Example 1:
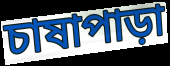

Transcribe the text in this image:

চাষাপাড়া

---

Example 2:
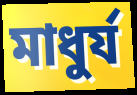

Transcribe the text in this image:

মাধুর্য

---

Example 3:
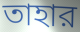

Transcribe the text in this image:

তাহার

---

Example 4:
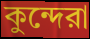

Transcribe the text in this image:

কুন্দেরা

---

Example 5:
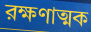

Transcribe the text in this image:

রক্ষণাত্মক